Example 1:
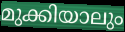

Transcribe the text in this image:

മുക്കിയാലും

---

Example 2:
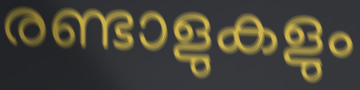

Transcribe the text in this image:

രണ്ടാളുകളും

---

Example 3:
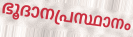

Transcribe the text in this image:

ഭൂദാനപ്രസ്ഥാനം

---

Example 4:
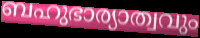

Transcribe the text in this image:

ബഹുഭാര്യാത്വവും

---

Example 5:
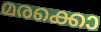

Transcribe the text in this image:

മരക്കൊ